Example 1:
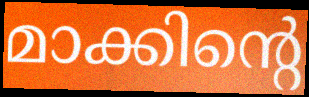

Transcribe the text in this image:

മാക്കിന്റെ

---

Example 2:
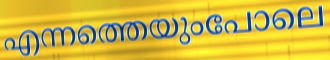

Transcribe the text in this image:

എന്നത്തെയുംപോലെ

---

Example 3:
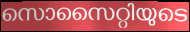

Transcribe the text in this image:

സൊസൈറ്റിയുടെ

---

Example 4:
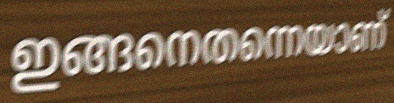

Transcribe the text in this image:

ഇങ്ങനെതന്നെയാണ്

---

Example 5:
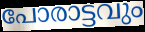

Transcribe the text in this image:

പോരാട്ടവും